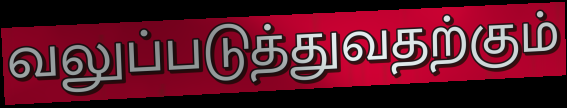
வலுப்படுத்துவதற்கும்